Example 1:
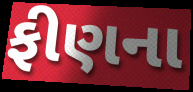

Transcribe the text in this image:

ફીણના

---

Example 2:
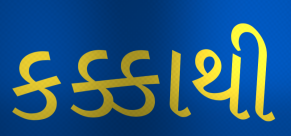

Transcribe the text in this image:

કક્કાથી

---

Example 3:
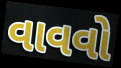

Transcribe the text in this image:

વાવવો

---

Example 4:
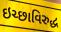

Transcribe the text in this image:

ઇચ્છાવિરુદ્ધ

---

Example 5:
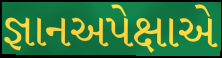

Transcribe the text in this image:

જ્ઞાનઅપેક્ષાએ